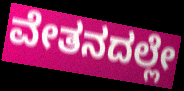
ವೇತನದಲ್ಲೇ